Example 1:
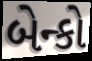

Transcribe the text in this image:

બેન્કો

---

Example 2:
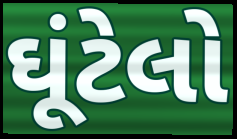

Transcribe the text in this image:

ઘૂંટેલો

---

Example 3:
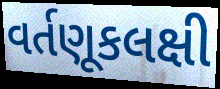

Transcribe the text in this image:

વર્તણૂકલક્ષી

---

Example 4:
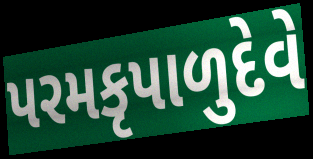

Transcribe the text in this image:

પરમકૃપાળુદેવે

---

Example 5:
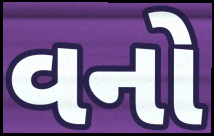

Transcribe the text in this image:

વનો